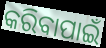
କରିବାପାଇଁ